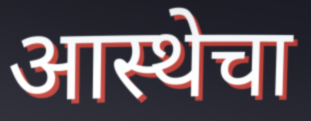
आस्थेचा